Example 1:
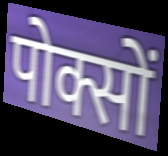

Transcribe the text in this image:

पोक्सों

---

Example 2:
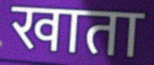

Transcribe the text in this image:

खाता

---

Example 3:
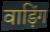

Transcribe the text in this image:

वाड़िंग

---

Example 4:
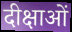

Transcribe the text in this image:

दीक्षाओं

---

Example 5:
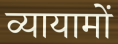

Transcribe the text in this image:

व्यायामों